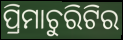
ପ୍ରିମାଚୁରିଟିର